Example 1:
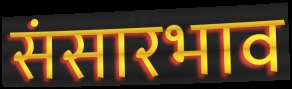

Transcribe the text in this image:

संसारभाव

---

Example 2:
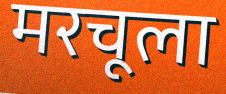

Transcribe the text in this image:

मरचूला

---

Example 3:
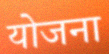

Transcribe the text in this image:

योजना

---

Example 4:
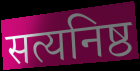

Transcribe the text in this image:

सत्यनिष्ठ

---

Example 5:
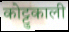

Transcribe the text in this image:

कोट्टुकाली